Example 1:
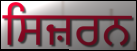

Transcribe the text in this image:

ਸਿਜ਼ਰਨ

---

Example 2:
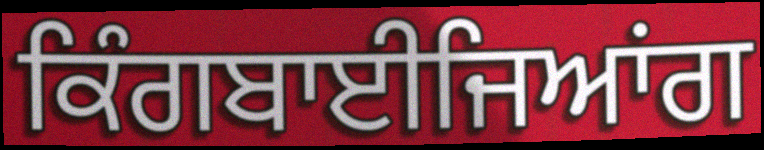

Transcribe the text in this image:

ਕਿੰਗਬਾਈਜਿਆਂਗ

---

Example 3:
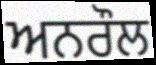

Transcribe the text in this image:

ਅਨਰੌਲ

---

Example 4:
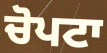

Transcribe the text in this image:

ਚੋਪਟਾ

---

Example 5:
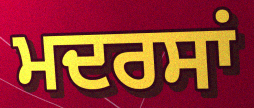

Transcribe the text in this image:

ਮਦਰਸਾਂ